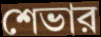
শেভার